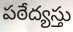
పఠేద్యస్తు